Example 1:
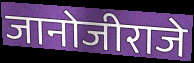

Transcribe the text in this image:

जानोजीराजे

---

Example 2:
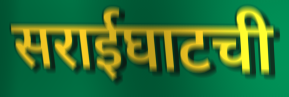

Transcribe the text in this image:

सराईघाटची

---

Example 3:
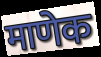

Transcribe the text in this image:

माणेक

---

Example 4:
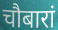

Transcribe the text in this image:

चौबारां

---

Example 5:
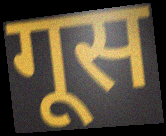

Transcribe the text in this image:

गूस